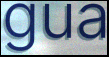
gua